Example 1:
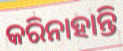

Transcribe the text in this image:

କରିନାହାନ୍ତି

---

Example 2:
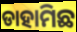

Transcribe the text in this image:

ଡାହାମିଛ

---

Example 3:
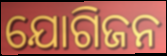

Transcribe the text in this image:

ଯୋଗିଜନ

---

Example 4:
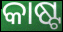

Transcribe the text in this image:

କାଷ୍ଟ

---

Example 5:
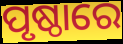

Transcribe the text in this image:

ପୃଷ୍ଠାରେ